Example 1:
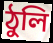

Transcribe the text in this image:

ঠুলি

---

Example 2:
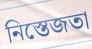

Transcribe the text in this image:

নিস্তেজতা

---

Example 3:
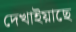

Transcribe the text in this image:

দেখাইয়াছে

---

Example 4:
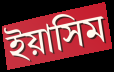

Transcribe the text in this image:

ইয়াসিম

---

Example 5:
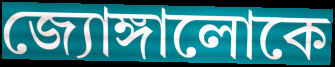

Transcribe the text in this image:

জ্যোঙ্গালোকে